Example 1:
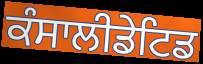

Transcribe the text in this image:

ਕੰਸਾਲੀਡੇਟਿਡ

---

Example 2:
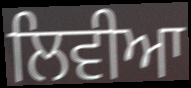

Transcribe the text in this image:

ਲਿਵੀਆ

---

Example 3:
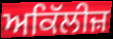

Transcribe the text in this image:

ਅਕਿੱਲੀਜ਼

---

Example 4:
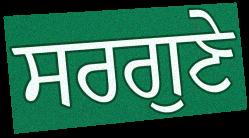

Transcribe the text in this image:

ਸਰਗੁਣੇ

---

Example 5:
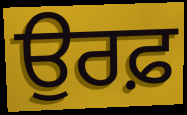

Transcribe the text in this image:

ਉਰਫ਼